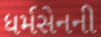
ધર્મસેનની